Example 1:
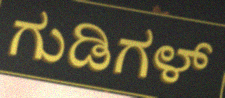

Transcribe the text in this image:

ಗುಡಿಗಳ್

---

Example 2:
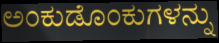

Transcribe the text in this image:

ಅಂಕುಡೊಂಕುಗಳನ್ನು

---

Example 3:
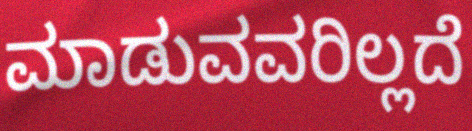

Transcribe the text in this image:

ಮಾಡುವವರಿಲ್ಲದೆ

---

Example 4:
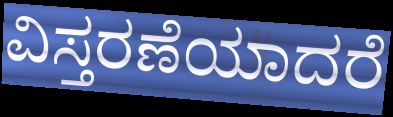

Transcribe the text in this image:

ವಿಸ್ತರಣೆಯಾದರೆ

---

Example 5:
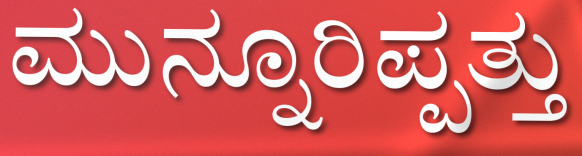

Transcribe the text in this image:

ಮುನ್ನೂರಿಪ್ಪತ್ತು